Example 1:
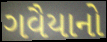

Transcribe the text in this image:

ગવૈયાનો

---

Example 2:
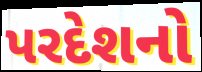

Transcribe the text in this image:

પરદેશનો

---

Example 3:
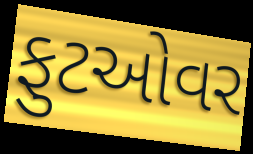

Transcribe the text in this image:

ફુટઓવર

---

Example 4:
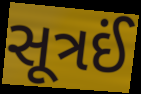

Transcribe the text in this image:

સૂત્રઈં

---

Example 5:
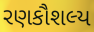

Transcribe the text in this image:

રણકૌશલ્ય